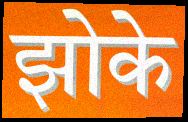
झोके